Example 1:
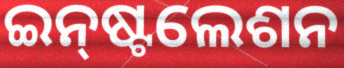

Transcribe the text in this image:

ଇନ୍‌ଷ୍ଟଲେଶନ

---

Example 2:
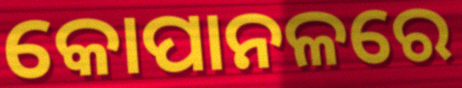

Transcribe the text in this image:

କୋପାନଳରେ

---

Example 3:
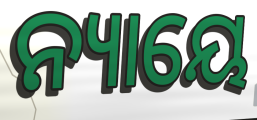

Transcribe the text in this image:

ନ୍ୟାୟେ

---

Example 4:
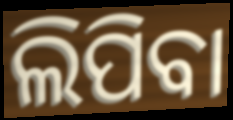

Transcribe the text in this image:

ଲିପିବା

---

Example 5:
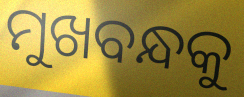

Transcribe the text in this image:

ମୁଖବନ୍ଧକୁ